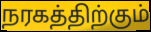
நரகத்திற்கும்